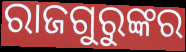
ରାଜଗୁରୁଙ୍କର